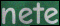
nete